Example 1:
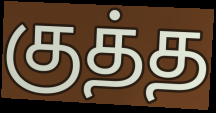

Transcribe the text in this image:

குத்த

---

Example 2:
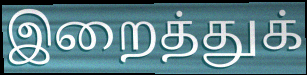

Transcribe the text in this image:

இறைத்துக்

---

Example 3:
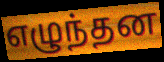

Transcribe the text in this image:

எழுந்தன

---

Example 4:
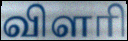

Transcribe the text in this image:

விளரி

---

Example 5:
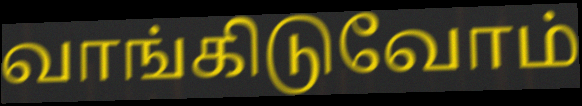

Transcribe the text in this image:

வாங்கிடுவோம்